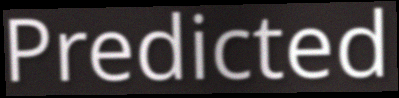
Predicted